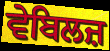
ਵੇਬਿਲਜ਼